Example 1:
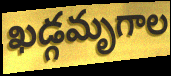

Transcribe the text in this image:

ఖడ్గమృగాల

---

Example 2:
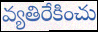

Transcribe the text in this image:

వ్యతిరేకించు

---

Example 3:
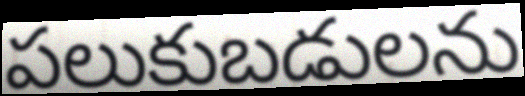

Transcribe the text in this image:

పలుకుబడులను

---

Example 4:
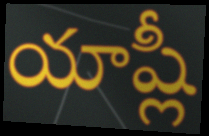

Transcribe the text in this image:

యాష్లీ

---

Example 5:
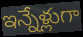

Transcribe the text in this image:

ఇన్నేళ్లుగా